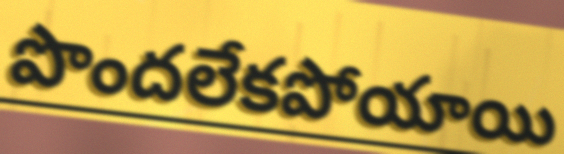
పొందలేకపోయాయి